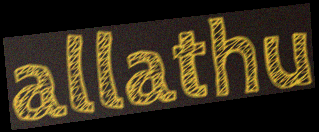
allathu